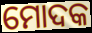
ମୋଦକ